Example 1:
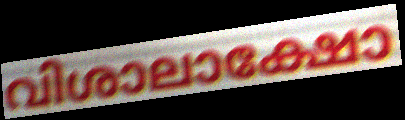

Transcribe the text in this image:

വിശാലാക്ഷോ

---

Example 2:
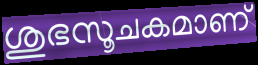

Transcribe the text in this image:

ശുഭസൂചകമാണ്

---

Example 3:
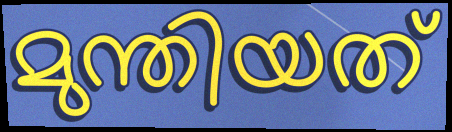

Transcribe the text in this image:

മുന്തിയത്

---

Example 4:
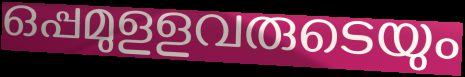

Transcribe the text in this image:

ഒപ്പമുളളവരുടെയും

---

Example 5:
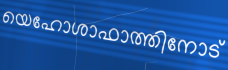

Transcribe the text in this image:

യെഹോശാഫാത്തിനോട്